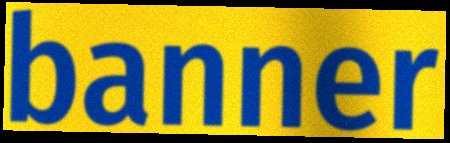
banner